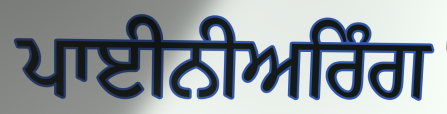
ਪਾਈਨੀਅਰਿੰਗ